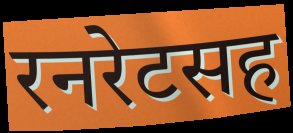
रनरेटसह